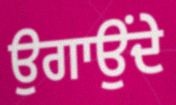
ਉਗਾਉਂਦੇ